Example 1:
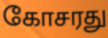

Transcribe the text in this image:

கோசரது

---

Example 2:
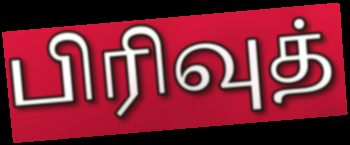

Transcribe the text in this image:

பிரிவுத்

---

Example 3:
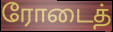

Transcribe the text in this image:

ரோடைத்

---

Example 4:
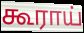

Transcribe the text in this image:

கூராய்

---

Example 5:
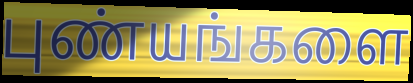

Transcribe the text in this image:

புண்யங்களை